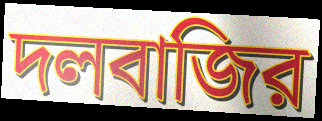
দলবাজির